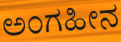
ಅಂಗಹೀನ